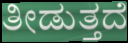
ತೀಡುತ್ತದೆ